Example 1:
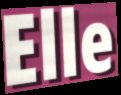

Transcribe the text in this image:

Elle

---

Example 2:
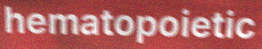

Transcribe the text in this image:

hematopoietic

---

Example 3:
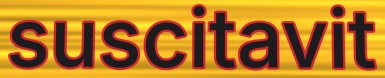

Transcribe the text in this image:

suscitavit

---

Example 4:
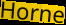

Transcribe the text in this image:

Horne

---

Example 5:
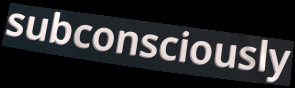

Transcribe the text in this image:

subconsciously